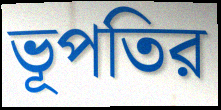
ভূপতির